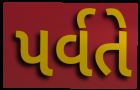
પર્વતે